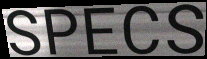
SPECS